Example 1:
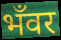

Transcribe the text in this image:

भँवर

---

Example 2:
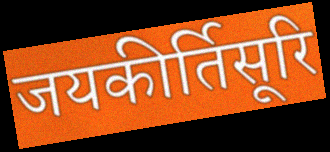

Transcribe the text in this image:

जयकीर्तिसूरि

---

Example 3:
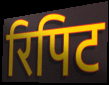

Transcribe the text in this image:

रिपिट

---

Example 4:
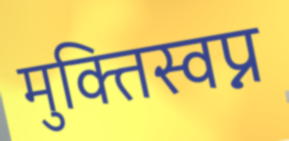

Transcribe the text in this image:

मुक्तिस्वप्न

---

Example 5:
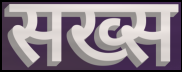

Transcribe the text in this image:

सख्स